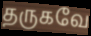
தருகவே